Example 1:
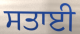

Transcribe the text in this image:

ਸਤਾਈ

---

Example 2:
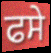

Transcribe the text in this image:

ਫਸੇ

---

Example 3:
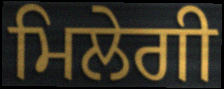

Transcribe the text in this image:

ਮਿਲੇਗੀ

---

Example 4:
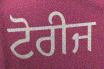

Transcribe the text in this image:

ਟੋਰੀਜ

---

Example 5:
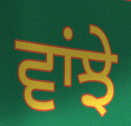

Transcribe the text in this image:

ਵਾਂਝੇ